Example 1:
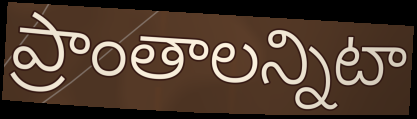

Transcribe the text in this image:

ప్రాంతాలన్నిటా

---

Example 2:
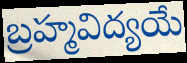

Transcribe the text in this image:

బ్రహ్మవిద్యయే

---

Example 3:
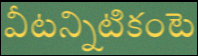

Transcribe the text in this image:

వీటన్నిటికంటె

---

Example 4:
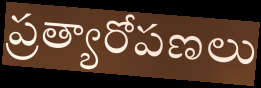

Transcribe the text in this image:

ప్రత్యారోపణలు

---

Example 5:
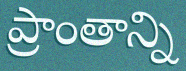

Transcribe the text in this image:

ప్రాంతాన్ని